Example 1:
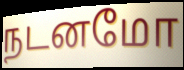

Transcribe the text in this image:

நடனமோ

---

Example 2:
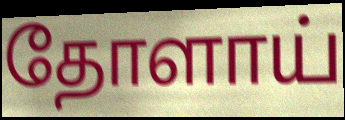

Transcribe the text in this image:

தோளாய்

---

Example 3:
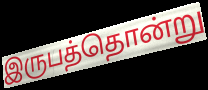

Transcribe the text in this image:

இருபத்தொன்று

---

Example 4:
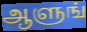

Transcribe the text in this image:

ஆளுங்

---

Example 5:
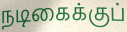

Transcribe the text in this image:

நடிகைக்குப்